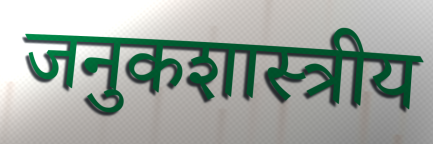
जनुकशास्त्रीय